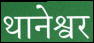
थानेश्वर